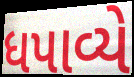
ધપાવ્યે